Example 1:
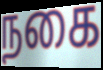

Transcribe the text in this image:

நகை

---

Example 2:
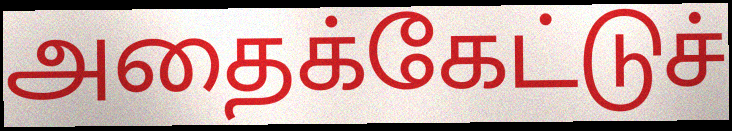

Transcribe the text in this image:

அதைக்கேட்டுச்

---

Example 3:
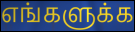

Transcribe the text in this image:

எங்களுக்க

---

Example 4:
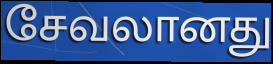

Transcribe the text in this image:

சேவலானது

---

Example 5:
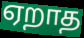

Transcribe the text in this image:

ஏறாத